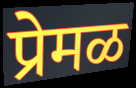
प्रेमळ